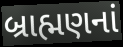
બ્રાહ્મણનાં